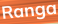
Ranga